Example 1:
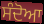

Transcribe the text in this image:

ਸੰਦੋਆ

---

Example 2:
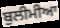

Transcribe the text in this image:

ਬੁਲੀਮੀਆ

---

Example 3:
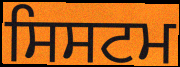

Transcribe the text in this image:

ਸਿਸਟਮ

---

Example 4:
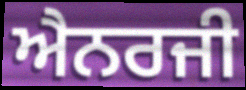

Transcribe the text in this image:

ਐਨਰਜੀ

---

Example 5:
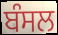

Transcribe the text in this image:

ਬੰਸਲ